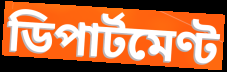
ডিপাৰ্টমেণ্ট